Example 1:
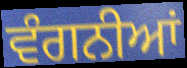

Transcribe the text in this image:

ਵੰਗਨੀਆਂ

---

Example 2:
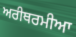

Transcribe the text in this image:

ਅਰੀਥਰਮੀਆ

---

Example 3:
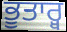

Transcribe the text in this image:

ਭੂਤਾਰ੍ਥ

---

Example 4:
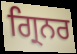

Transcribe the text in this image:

ਗ੍ਰਿਨਰ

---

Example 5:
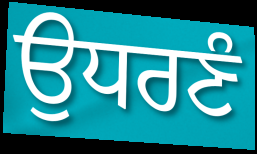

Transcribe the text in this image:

ਉਧਰਣੰ